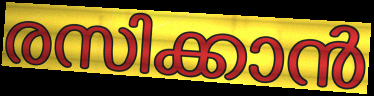
രസിക്കാൻ